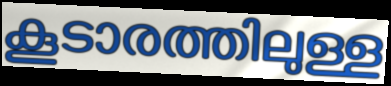
കൂടാരത്തിലുള്ള